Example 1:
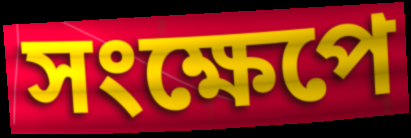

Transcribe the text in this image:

সংক্ষেপে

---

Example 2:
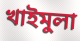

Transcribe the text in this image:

খাইমুলা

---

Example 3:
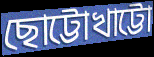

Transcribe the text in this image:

ছোট্টোখাট্টো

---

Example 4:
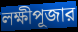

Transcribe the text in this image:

লক্ষীপূজার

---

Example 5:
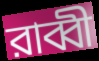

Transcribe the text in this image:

রাব্বী